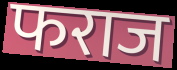
फराज